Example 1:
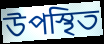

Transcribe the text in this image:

উপস্থিত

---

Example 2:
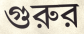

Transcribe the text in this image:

গুরুর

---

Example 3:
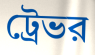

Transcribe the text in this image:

ট্রেভর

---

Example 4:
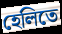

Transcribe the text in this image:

হেলিতে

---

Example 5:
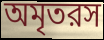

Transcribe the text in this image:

অমৃতরস